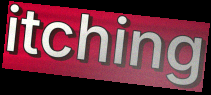
itching